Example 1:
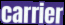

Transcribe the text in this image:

carrier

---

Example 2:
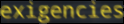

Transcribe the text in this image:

exigencies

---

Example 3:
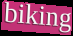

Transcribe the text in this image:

biking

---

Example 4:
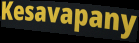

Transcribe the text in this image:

Kesavapany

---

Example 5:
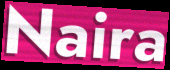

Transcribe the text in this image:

Naira